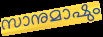
സാനുമാഷും